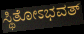
ಸ್ಥಿತೋಽಭವತ್